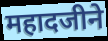
महादजीने